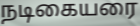
நடிகையரை